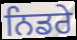
ਨਿਡਰੇ